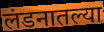
लंडनातल्या